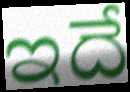
ఇదే